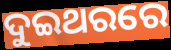
ଦୁଇଥରରେ